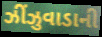
ઝીંઝુવાડાની